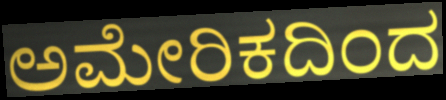
ಅಮೇರಿಕದಿಂದ